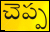
చెప్ప